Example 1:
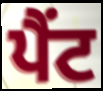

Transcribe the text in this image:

ਪੈਂਟ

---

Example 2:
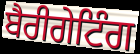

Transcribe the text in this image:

ਬੈਰੀਗੇਟਿੰਗ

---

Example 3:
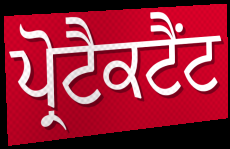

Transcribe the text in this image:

ਪ੍ਰੋਟੈਕਟੈਂਟ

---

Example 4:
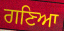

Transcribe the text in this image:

ਗਣਿਆ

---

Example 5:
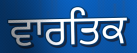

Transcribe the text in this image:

ਵਾਰਤਿਕ